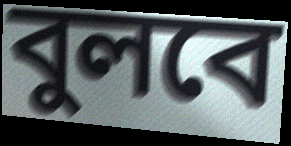
বুলবে